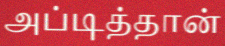
அப்டித்தான்